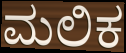
ಮಲಿಕ